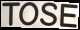
TOSE